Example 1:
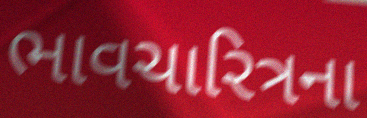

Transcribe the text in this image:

ભાવચારિત્રના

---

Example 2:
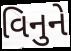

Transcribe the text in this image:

વિનુને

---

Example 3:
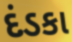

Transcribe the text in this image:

દંડકા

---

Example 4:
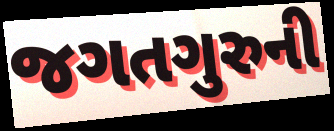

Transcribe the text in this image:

જગતગુરુની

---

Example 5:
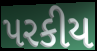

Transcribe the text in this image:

પરકીય